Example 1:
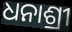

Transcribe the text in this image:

ଧନାଶ୍ରୀ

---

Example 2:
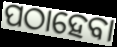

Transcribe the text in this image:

ପଠାହେବା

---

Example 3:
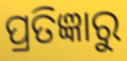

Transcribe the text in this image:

ପ୍ରତିଜ୍ଞାରୁ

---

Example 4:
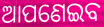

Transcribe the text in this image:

ଆପଣେଇବ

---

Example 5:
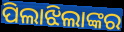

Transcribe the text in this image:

ପିଲାଝିଲାଙ୍କର